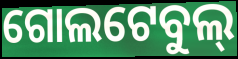
ଗୋଲଟେବୁଲ୍